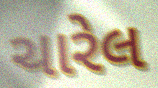
ચારેલ